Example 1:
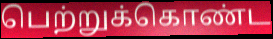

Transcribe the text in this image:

பெற்றுக்கொண்ட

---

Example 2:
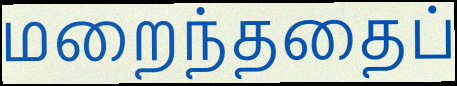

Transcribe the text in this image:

மறைந்ததைப்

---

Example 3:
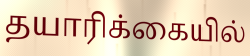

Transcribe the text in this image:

தயாரிக்கையில்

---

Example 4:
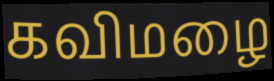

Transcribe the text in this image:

கவிமழை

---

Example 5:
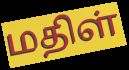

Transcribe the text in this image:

மதிள்